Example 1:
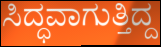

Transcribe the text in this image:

ಸಿದ್ಧವಾಗುತ್ತಿದ್ದ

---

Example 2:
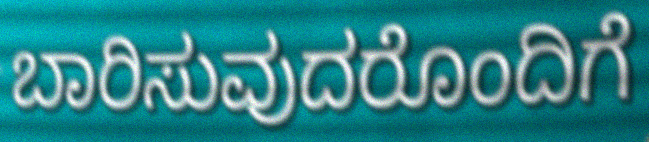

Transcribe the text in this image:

ಬಾರಿಸುವುದರೊಂದಿಗೆ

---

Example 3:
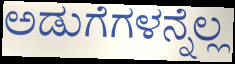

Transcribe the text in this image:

ಅಡುಗೆಗಳನ್ನೆಲ್ಲ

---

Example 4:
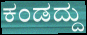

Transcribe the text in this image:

ಕಂಡದ್ದು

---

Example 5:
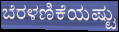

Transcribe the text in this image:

ಬೆರಳಣಿಕೆಯಷ್ಟು